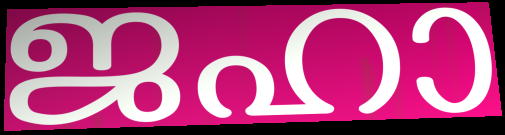
ജഹാ